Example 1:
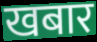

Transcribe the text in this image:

खबार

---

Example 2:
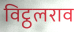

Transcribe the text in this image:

विट्ठलराव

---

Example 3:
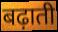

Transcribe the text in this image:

बढ़ाती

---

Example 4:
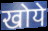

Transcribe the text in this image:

खोये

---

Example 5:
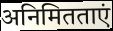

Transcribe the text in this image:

अनिमितताएं